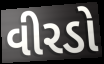
વીરડો